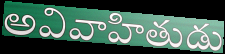
అవివాహితుడు